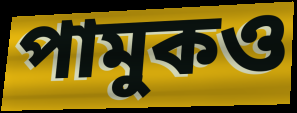
পামুকও